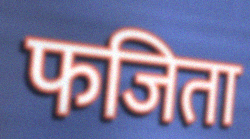
फजिता